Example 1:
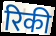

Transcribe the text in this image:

रिकी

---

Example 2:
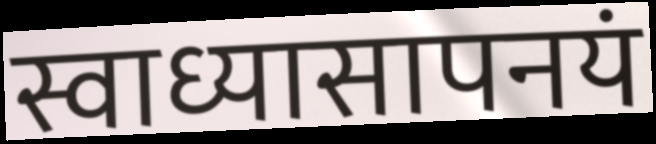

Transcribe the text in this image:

स्वाध्यासापनयं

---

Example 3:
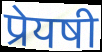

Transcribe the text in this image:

प्रेयषी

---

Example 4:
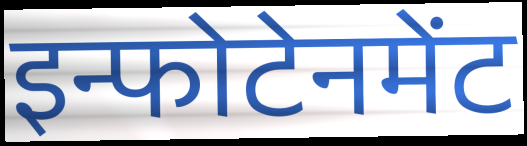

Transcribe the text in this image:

इन्फोटेनमेंट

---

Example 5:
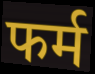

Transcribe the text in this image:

फर्म